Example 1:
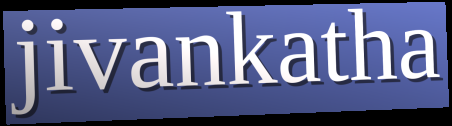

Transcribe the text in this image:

jivankatha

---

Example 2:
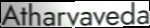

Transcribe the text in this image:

Atharvaveda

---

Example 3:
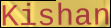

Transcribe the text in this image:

Kishan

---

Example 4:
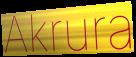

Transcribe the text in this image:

Akrura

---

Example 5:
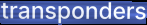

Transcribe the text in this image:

transponders